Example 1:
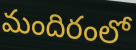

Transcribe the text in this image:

మందిరంలో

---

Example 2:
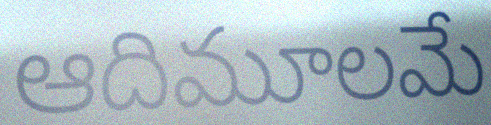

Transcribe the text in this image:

ఆదిమూలమే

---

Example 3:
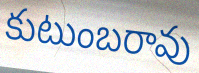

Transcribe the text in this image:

కుటుంబరావు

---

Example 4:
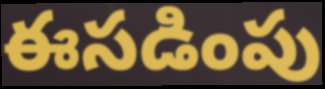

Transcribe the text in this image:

ఈసడింపు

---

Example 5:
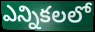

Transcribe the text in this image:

ఎన్నికలలో